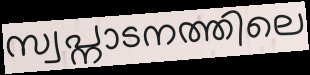
സ്വപ്നാടനത്തിലെ